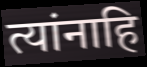
त्यांनाहि